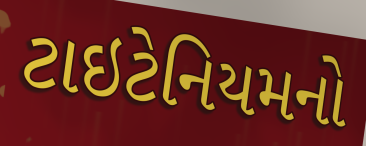
ટાઇટેનિયમનો